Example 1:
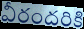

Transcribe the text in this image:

వీరందరికి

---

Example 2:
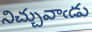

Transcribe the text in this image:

నిచ్చువాఁడు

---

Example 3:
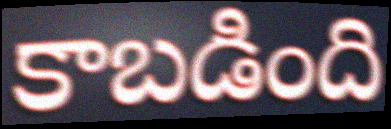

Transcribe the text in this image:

కాబడింది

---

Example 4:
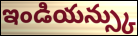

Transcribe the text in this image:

ఇండియన్స్కు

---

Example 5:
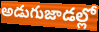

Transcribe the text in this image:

అడుగుజాడల్లో